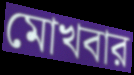
মোখবার